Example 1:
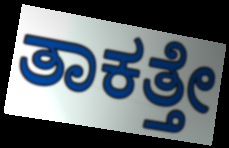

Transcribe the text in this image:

ತಾಕತ್ತೇ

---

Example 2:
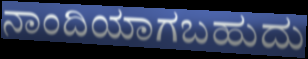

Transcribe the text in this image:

ನಾಂದಿಯಾಗಬಹುದು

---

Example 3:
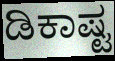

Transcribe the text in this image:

ಡಿಕಾಷ್ಟ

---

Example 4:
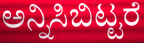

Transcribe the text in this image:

ಅನ್ನಿಸಿಬಿಟ್ಟರೆ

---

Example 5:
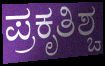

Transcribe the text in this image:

ಪ್ರಕೃತಿಶ್ಚ